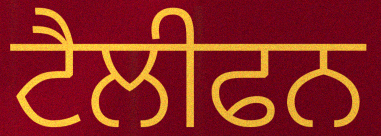
ਟੈਲੀਫਨ